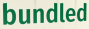
bundled